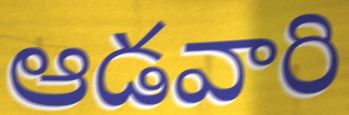
ఆడవారి